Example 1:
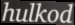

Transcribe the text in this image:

hulkod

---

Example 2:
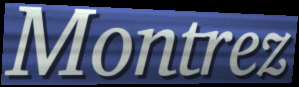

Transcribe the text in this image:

Montrez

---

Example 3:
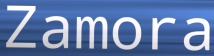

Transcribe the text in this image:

Zamora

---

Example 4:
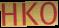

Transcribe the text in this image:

HKO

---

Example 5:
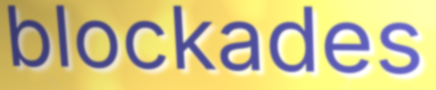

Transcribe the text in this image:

blockades